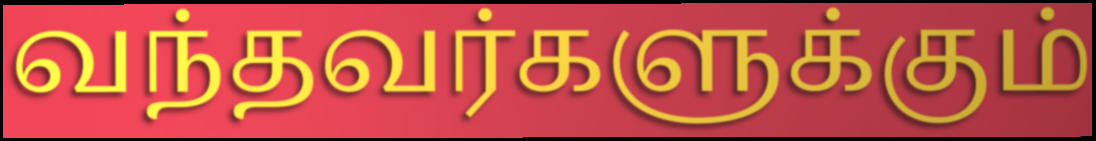
வந்தவர்களுக்கும்